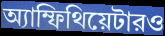
অ্যাম্ফিথিয়েটারও